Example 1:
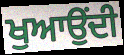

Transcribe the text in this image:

ਖੁਆਉਂਦੀ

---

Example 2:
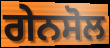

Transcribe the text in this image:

ਗੇਨਸੋਲ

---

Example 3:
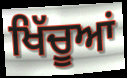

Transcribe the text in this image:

ਖਿੱਚੂਆਂ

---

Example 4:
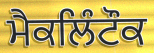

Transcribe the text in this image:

ਮੈਕਲਿੰਟੌਕ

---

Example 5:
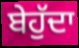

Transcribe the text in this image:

ਬੇਹੁੱਦਾ